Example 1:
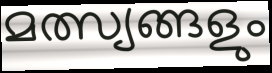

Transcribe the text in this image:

മത്സ്യങ്ങളും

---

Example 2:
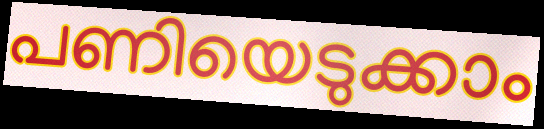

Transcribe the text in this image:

പണിയെടുക്കാം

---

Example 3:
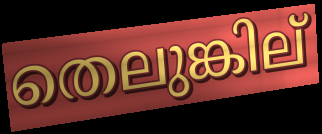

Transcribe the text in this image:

തെലുങ്കില്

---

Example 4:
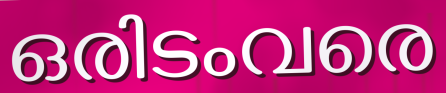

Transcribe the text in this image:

ഒരിടംവരെ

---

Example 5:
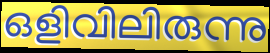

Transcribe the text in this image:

ഒളിവിലിരുന്നു